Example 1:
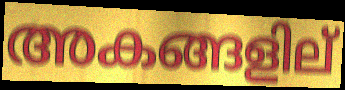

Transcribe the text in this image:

അകങ്ങളില്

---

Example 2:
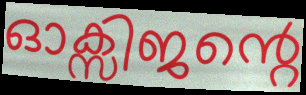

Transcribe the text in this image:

ഓക്സിജന്റെ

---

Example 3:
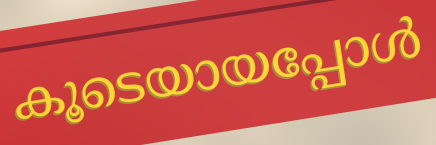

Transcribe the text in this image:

കൂടെയായപ്പോൾ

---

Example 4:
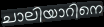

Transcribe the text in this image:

ചാലിയാറിനെ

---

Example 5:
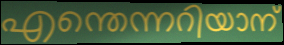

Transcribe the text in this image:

എന്തെന്നറിയാന്